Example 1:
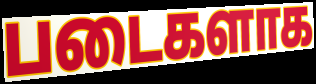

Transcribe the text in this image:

படைகளாக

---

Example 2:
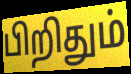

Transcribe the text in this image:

பிறிதும்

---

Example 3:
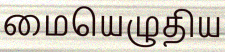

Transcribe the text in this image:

மையெழுதிய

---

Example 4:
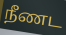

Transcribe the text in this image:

நீணட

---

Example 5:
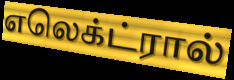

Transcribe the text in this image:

எலெக்ட்ரால்